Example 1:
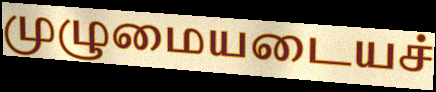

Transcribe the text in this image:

முழுமையடையச்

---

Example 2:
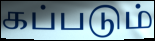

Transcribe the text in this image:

கப்படும்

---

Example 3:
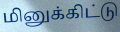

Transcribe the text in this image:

மினுக்கிட்டு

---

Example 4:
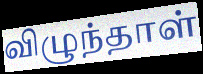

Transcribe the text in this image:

விழுந்தாள்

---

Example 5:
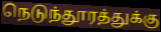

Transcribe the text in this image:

நெடுந்தூரத்துக்கு